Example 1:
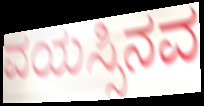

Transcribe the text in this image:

ವಯಸ್ಸಿನವ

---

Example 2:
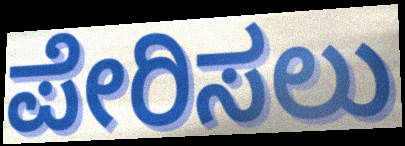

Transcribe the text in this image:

ಪೇರಿಸಲು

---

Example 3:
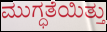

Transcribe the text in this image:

ಮುಗ್ಧತೆಯಿತ್ತು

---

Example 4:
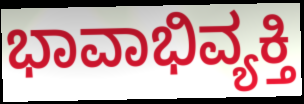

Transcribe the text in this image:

ಭಾವಾಭಿವ್ಯಕ್ತಿ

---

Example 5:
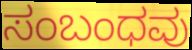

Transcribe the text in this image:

ಸಂಬಂಧವು